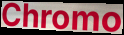
Chromo